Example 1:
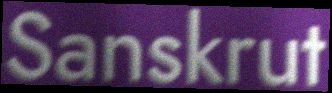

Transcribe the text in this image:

Sanskrut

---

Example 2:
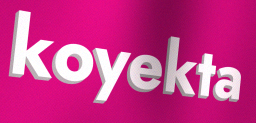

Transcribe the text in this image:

koyekta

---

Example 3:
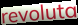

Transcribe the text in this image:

revoluta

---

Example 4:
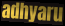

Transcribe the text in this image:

adhyaru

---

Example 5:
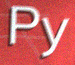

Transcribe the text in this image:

Py